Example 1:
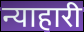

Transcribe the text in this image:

न्याहारी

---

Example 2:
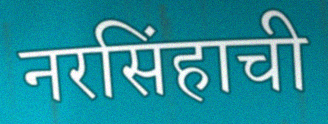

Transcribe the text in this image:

नरसिंहाची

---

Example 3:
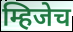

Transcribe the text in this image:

म्हिजेच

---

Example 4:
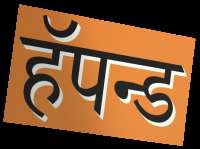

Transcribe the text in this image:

हॅपन्ड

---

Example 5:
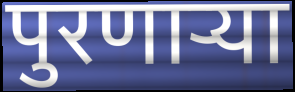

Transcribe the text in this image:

पुरणाऱ्या